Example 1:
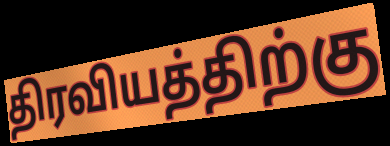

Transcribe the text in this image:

திரவியத்திற்கு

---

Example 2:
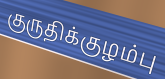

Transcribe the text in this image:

குருதிக்குழம்பு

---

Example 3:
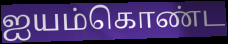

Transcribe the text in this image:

ஐயம்கொண்ட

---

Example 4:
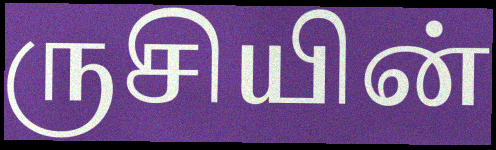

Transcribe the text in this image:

ருசியின்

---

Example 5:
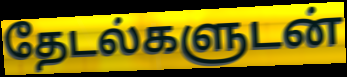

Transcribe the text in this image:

தேடல்களுடன்